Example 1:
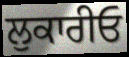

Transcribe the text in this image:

ਲੁਕਾਰੀਓ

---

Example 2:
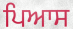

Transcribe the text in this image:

ਪਿਆਸ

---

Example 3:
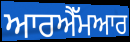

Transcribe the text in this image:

ਆਰਐੱਮਆਰ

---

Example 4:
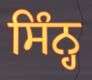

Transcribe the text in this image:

ਸਿੰਨ੍ਹ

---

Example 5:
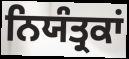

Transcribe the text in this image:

ਨਿਯੰਤ੍ਰਕਾਂ